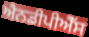
ਐਨਡੀਪੀਐੱਸ